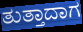
ತುತ್ತಾದಾಗ